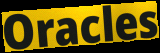
Oracles